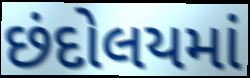
છંદોલયમાં